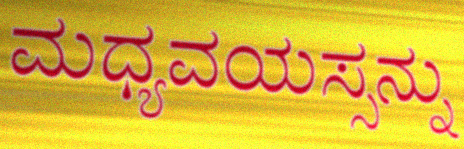
ಮಧ್ಯವಯಸ್ಸನ್ನು